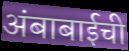
अंबाबाईची